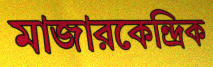
মাজারকেন্দ্রিক